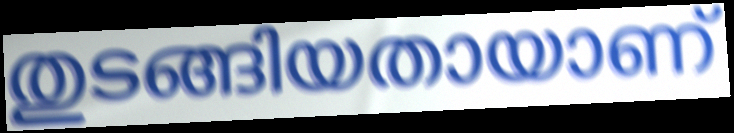
തുടങ്ങിയതായാണ്